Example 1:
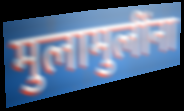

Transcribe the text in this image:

मुलामुलींना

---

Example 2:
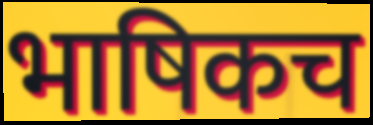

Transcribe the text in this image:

भाषिकच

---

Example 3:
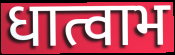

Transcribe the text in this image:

धात्वाभ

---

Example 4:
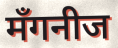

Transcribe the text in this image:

मँगनीज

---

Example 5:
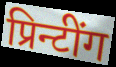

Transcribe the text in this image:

प्रिन्टींग